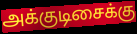
அக்குடிசைக்கு